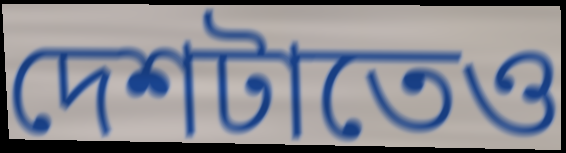
দেশটাতেও